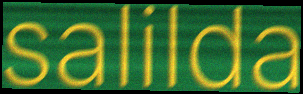
salilda